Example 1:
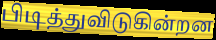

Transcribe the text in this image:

பிடித்துவிடுகின்றன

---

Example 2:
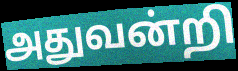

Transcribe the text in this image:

அதுவன்றி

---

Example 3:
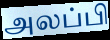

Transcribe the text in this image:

அலப்பி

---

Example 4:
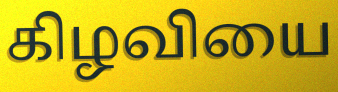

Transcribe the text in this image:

கிழவியை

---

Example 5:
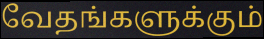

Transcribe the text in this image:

வேதங்களுக்கும்